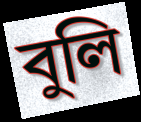
বুলি